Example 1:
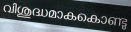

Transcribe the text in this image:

വിശുദ്ധമാകകൊണ്ടു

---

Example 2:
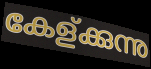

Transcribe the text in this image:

കേള്ക്കുന്നു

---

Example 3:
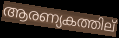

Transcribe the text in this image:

ആരണ്യകത്തില്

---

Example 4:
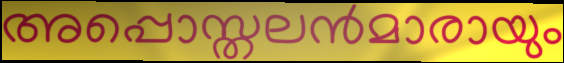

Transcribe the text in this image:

അപ്പൊസ്തലൻമാരായും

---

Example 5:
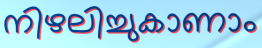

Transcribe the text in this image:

നിഴലിച്ചുകാണാം